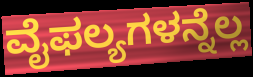
ವೈಫಲ್ಯಗಳನ್ನೆಲ್ಲ